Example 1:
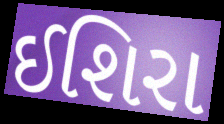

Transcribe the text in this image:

ઈશિરા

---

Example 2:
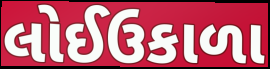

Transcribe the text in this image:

લોઈઉકાળા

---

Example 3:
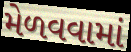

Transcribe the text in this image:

મેળવવામાં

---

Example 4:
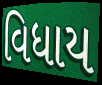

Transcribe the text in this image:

વિધાય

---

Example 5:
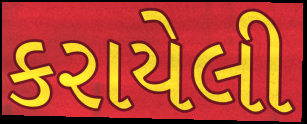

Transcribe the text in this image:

કરાયેલી